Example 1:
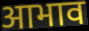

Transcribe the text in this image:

आभाव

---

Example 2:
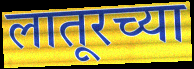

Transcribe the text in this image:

लातूरच्या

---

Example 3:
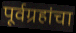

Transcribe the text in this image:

पूर्वग्रहांचा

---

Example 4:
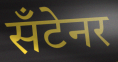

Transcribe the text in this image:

सँटेनर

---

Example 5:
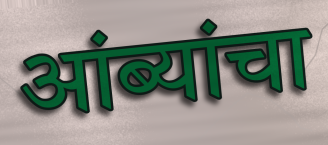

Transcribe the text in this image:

आंब्यांचा